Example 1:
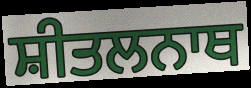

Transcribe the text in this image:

ਸ਼ੀਤਲਨਾਥ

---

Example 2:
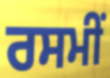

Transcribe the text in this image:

ਰਸਮੀਂ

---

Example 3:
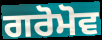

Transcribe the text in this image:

ਗਰੋਮੋਵ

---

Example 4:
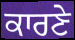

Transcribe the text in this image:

ਕਾਰਣੇ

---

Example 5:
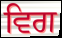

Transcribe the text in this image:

ਵਿਗ